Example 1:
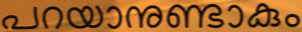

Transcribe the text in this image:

പറയാനുണ്ടാകും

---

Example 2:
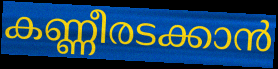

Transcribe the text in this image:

കണ്ണീരടക്കാൻ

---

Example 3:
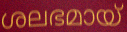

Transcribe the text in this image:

ശലഭമായ്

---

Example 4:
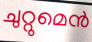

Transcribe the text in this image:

ചുറ്റുമെൻ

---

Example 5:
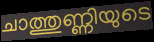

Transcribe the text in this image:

ചാത്തുണ്ണിയുടെ